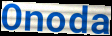
Onoda